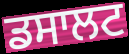
ਡਸਾਲਟ